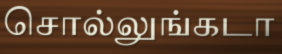
சொல்லுங்கடா